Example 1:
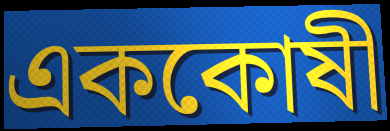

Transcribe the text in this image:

এককোষী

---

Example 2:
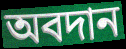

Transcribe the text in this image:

অবদান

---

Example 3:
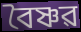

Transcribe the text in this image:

বৈষ্ণৱ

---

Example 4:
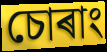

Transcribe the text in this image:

চোৰাং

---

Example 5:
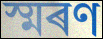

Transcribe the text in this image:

স্মৰণ